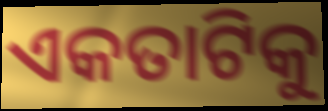
ଏକତାଟିକୁ